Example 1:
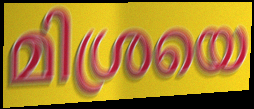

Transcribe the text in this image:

മിശ്രയെ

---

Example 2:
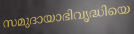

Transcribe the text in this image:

സമുദായാഭിവൃദ്ധിയെ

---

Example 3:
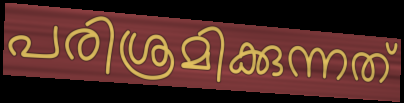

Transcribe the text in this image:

പരിശ്രമിക്കുന്നത്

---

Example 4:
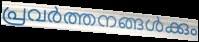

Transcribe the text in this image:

പ്രവർത്തനങ്ങൾക്കും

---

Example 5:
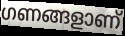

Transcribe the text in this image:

ഗണങ്ങളാണ്